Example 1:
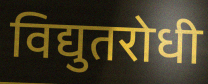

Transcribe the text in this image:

विद्युतरोधी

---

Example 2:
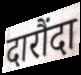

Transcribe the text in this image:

दारौंदा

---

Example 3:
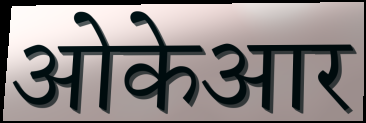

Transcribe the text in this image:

ओकेआर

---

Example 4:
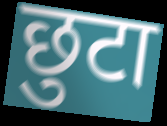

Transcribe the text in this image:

छुटा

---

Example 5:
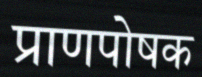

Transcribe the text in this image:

प्राणपोषक